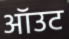
ऑउट